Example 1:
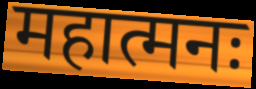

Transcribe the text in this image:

महात्मनः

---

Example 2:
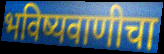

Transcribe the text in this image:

भविष्यवाणीचा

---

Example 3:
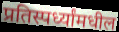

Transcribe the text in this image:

प्रतिस्पर्ध्यांमधील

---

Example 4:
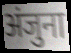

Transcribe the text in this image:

अंजुना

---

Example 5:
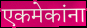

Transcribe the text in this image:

एकमेकांना